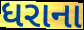
ધરાના